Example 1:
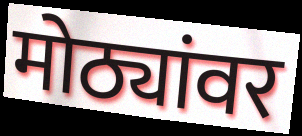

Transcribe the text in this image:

मोठ्यांवर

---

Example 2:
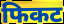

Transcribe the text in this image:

फिकट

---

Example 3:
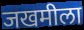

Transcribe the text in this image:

जखमीला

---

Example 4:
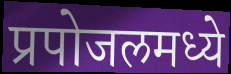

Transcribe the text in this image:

प्रपोजलमध्ये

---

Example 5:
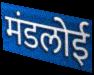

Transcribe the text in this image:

मंडलोई